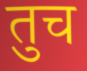
तुच